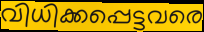
വിധിക്കപ്പെട്ടവരെ